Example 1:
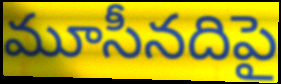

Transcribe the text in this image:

మూసీనదిపై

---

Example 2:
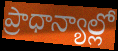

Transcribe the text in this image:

ప్రాధాన్యాల్లో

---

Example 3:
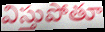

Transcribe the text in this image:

విస్తుపోతూ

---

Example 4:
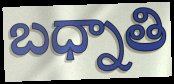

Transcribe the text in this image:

బధ్నాతి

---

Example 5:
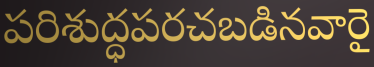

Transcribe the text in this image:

పరిశుద్ధపరచబడినవారై